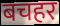
बचहर